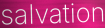
salvation